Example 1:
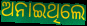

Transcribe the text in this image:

ଅନାଇଥିଲେ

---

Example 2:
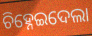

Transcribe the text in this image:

ଚିହ୍ନେଇଦେଲା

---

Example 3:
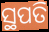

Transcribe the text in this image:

ସ୍ଥପତି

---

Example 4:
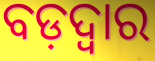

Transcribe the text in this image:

ବଡ଼ଦ୍ୱାର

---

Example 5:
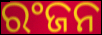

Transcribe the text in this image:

ରଂଜନ